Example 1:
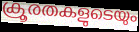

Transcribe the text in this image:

ക്രൂരതകളുടെയും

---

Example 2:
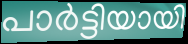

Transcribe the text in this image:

പാർട്ടിയായി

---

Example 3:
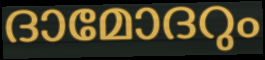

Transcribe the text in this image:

ദാമോദറും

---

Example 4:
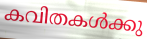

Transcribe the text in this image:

കവിതകൾക്കു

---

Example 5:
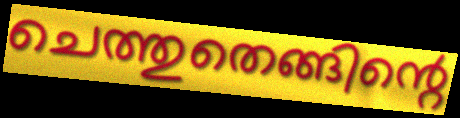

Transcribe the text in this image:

ചെത്തുതെങ്ങിന്റെ